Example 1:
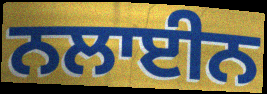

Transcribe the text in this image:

ਨਲਾਈਨ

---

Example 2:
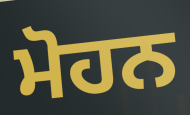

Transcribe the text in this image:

ਮੋਹਨ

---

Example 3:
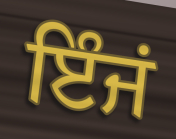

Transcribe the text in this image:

ਇੰਜਂ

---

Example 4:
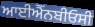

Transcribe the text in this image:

ਆਈਐੱਨਬੀਓਸੀ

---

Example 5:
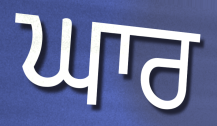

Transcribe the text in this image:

ਘਾਰ